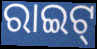
ରାଇଟ୍